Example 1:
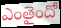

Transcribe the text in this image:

ఎంతైందో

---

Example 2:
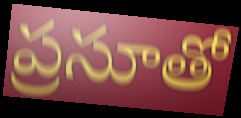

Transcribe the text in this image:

ప్రసూతో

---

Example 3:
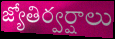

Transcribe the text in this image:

జ్యోతిర్వర్షాలు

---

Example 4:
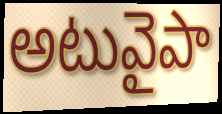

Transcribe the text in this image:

అటువైపా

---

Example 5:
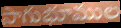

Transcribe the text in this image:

సాగుభూముల